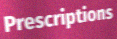
Prescriptions